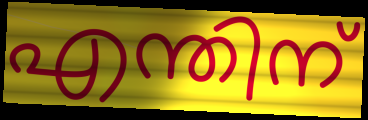
എന്തിന്